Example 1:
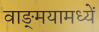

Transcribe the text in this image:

वाङ्‌मयामध्यें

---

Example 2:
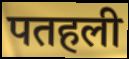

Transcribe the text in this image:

पतहली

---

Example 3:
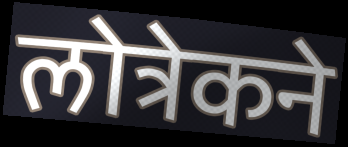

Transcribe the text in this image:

लोत्रेकने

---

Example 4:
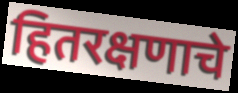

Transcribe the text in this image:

हितरक्षणाचे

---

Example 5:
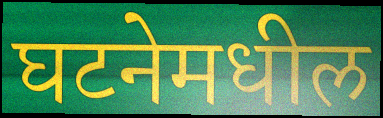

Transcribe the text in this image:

घटनेमधील